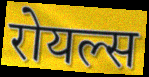
रोयल्स